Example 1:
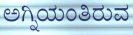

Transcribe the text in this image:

ಅಗ್ನಿಯಂತಿರುವ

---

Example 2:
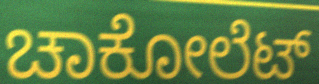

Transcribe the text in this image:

ಚಾಕೋಲೆಟ್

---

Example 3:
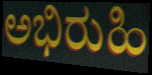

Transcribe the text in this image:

ಅಭಿರುಹಿ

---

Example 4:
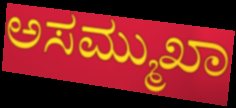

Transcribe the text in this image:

ಅಸಮ್ಮುಖಾ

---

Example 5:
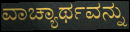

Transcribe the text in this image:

ವಾಚ್ಯಾರ್ಥವನ್ನು